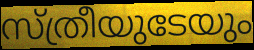
സ്ത്രീയുടേയും